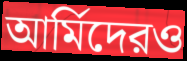
আর্মিদেরও